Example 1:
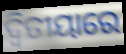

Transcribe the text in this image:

ଦ୍ୱିତୀୟାରେ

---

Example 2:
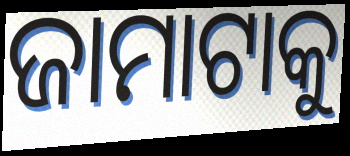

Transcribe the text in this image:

ଜାମାଟାକୁ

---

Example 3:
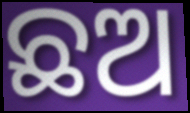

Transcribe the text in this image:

ଛଅ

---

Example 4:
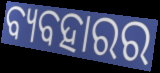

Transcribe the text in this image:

ବ୍ୟବହାରର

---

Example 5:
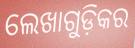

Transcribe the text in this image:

ଲେଖାଗୁଡ଼ିକର